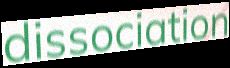
dissociation